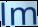
Im